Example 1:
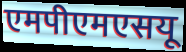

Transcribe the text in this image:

एमपीएमएसयू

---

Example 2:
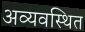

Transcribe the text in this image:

अव्यवस्थित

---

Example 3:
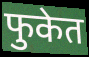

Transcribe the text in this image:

फुकेत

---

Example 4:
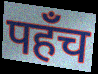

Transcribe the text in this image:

पहँच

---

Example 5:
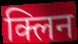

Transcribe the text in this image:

क्लिन